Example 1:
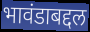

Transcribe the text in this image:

भावंडाबद्दल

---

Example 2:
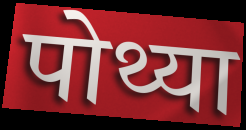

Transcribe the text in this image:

पोथ्या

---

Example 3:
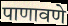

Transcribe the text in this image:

पाणावणे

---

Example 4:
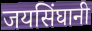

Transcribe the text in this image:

जयसिंघानी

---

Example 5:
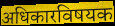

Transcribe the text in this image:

अधिकारविषयक